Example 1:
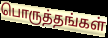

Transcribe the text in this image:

பொருத்தங்கள்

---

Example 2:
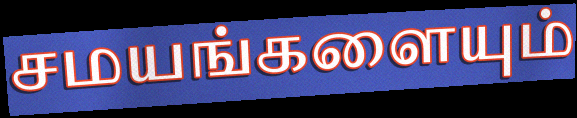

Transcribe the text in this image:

சமயங்களையும்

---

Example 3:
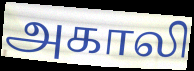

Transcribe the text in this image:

அகாலி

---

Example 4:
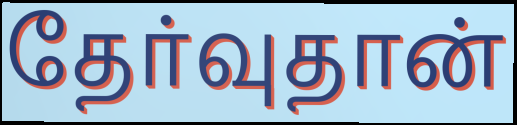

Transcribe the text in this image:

தேர்வுதான்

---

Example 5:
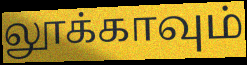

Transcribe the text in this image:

லூக்காவும்